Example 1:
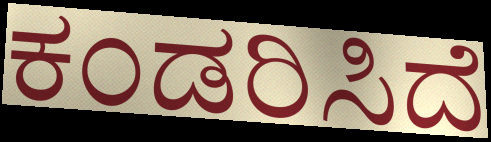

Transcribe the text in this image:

ಕಂಡರಿಸಿದೆ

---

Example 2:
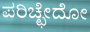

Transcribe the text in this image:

ಪರಿಚ್ಛೇದೋ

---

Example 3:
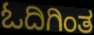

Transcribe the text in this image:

ಓದಿಗಿಂತ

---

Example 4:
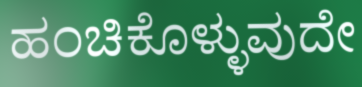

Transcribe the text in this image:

ಹಂಚಿಕೊಳ್ಳುವುದೇ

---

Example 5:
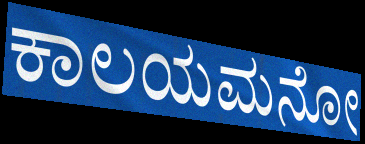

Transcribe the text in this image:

ಕಾಲಯಮನೋ